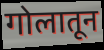
गोलातून